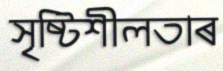
সৃষ্টিশীলতাৰ